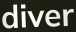
diver